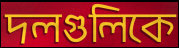
দলগুলিকে